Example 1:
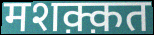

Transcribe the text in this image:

मशक़्क़त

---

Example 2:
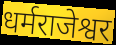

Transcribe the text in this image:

धर्मराजेश्वर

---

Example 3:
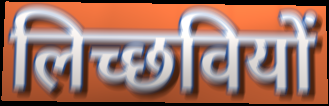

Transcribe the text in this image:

लिच्छवियों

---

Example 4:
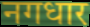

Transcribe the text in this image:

नगधार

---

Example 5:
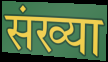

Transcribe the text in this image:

संख्‍या